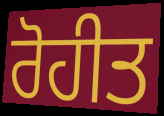
ਰੋਹੀਤ